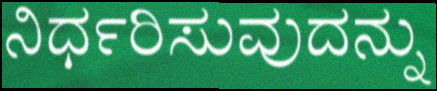
ನಿರ್ಧರಿಸುವುದನ್ನು